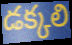
డక్కలి